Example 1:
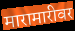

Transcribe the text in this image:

मारामारीवर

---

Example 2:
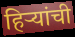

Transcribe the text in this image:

हिऱ्यांची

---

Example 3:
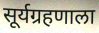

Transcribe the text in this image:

सूर्यग्रहणाला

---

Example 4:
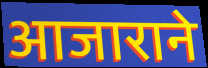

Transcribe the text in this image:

आजाराने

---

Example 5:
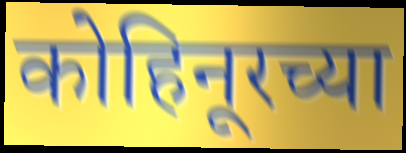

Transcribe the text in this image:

कोहिनूरच्या